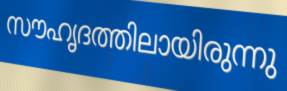
സൗഹൃദത്തിലായിരുന്നു